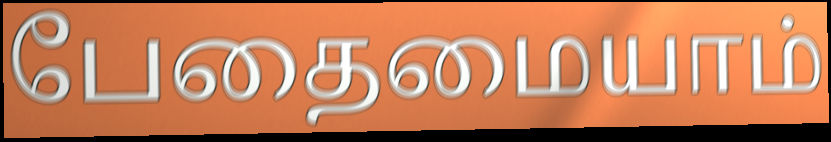
பேதைமையாம்